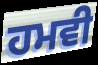
ਹਮਵੀ